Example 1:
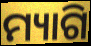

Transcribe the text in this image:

ମ୍ୟାଗି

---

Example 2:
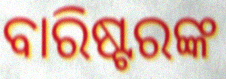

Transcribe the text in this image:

ବାରିଷ୍ଟରଙ୍କ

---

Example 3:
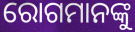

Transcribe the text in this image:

ରୋଗମାନଙ୍କୁ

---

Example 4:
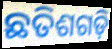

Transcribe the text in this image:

ଛତିଶଗଡ଼ି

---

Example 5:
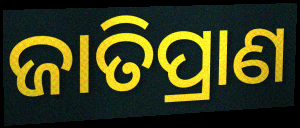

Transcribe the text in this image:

ଜାତିପ୍ରାଣ